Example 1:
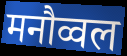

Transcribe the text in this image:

मनौव्वल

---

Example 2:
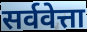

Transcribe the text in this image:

सर्ववेत्ता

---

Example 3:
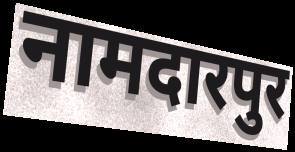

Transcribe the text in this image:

नामदारपुर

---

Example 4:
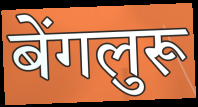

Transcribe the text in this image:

बेंगलुरू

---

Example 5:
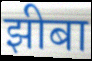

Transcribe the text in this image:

झीबा